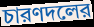
চারণদলের